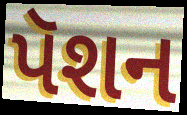
પૅશન